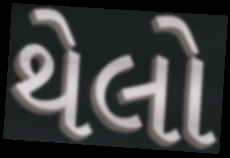
થેલો